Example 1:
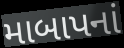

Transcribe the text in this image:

માબાપનાં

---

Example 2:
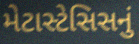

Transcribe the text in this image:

મેટાસ્ટેસિસનું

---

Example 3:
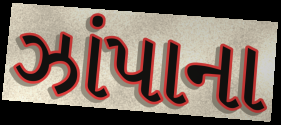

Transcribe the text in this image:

ઝાંપાના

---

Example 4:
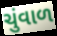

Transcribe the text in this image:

ચુંવાળ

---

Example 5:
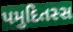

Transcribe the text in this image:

પમુદિતસ્સ